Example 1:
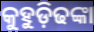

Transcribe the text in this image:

କୁହୁଡ଼ିଢଙ୍କା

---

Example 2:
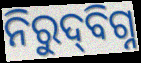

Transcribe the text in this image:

ନିରୁଦ୍‌ବିଗ୍ନ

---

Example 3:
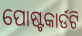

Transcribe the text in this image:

ପୋଷ୍ଟକାର୍ଡଟି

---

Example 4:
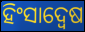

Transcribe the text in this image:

ହିଂସାଦ୍ୱେଷ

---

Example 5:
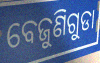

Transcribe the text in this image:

ବେଜୁଣିଗୁଡା